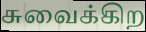
சுவைக்கிற